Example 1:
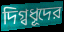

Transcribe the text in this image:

দিগ্বধূদের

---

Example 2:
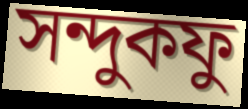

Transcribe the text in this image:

সন্দুকফু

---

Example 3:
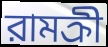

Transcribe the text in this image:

রামক্রী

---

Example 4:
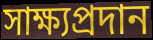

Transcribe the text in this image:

সাক্ষ্যপ্রদান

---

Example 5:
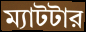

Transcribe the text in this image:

ম্যাটটার